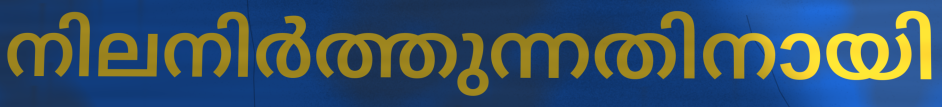
നിലനിർത്തുന്നതിനായി